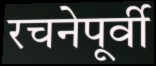
रचनेपूर्वी